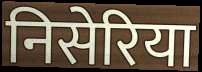
निसेरिया